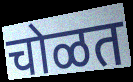
चोळत